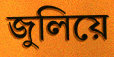
জুলিয়ে